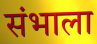
संभाला